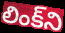
లింక్‌ని